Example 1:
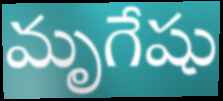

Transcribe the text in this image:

మృగేషు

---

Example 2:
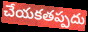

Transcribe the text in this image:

చేయకతప్పదు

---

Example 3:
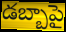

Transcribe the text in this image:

డబ్బాపై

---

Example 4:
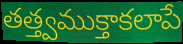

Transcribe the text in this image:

తత్త్వముక్తాకలాపే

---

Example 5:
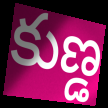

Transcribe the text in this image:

కుణ్డ